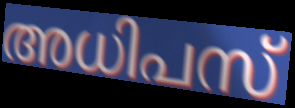
അധിപസ്